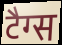
टैग्स